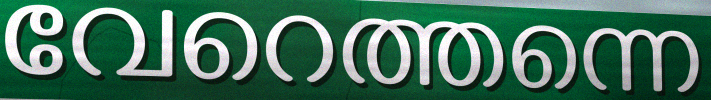
വേറെത്തന്നെ